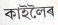
কাইলৈৰ